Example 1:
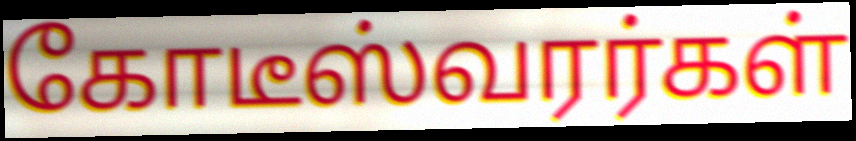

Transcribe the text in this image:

கோடீஸ்வரர்கள்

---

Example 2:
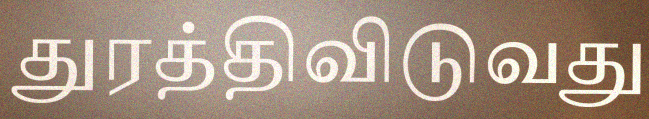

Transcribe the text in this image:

துரத்திவிடுவது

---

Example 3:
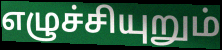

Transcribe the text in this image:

எழுச்சியுறும்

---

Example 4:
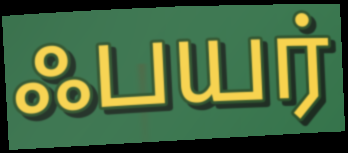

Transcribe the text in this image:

ஃபயர்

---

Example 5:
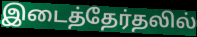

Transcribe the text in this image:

இடைத்தேர்தலில்